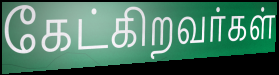
கேட்கிறவர்கள்